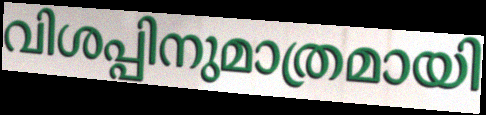
വിശപ്പിനുമാത്രമായി